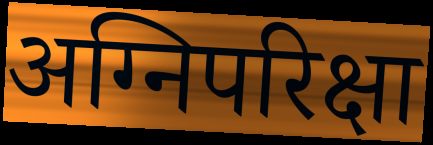
अग्निपरिक्षा